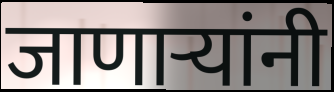
जाणाऱ्यांनी